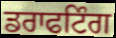
ਡਰਾਫਟਿੰਗ